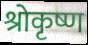
श्रोकृष्ण